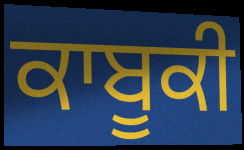
ਕਾਬੂਕੀ